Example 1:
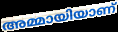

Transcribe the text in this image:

അമ്മായിയാണ്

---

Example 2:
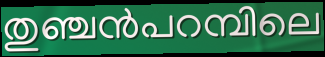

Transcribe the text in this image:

തുഞ്ചൻപറമ്പിലെ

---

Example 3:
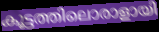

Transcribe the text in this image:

കൂട്ടത്തിലൊരാളായി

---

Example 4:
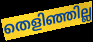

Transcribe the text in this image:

തെളിഞ്ഞില്ല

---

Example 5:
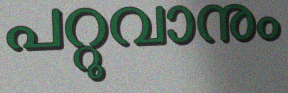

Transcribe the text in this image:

പറ്റുവാനും